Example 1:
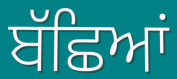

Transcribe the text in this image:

ਬੱਛਿਆਂ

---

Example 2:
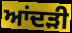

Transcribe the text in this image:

ਆਂਦੜੀ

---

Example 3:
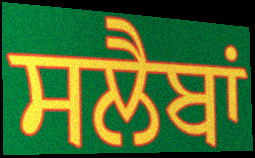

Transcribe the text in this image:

ਸਲੈਬਾਂ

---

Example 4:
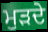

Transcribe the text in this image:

ਮੁਡ਼ਦੇ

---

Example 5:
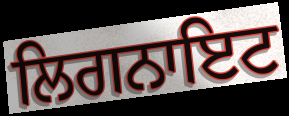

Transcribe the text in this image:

ਲਿਗਨਾਇਟ